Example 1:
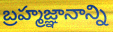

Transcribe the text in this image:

బ్రహ్మజ్ఞానాన్ని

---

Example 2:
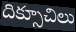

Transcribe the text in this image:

దిక్సూచిలు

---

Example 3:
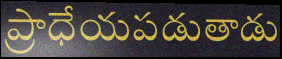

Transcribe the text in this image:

ప్రాధేయపడుతాడు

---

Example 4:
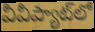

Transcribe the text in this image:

వీవీప్యాట్‌లో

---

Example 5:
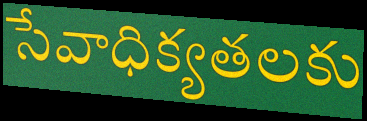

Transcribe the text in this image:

సేవాధిక్యతలకు